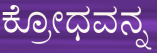
ಕ್ರೋಧವನ್ನ